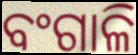
ବଂଗାଳି